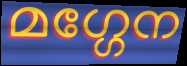
മഗ്ഗേന